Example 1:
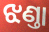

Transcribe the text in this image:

ଝଣ୍ତା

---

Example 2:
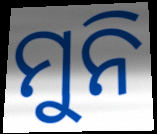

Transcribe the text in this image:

ମୁନି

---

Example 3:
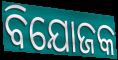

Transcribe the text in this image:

ବିଯୋଜକ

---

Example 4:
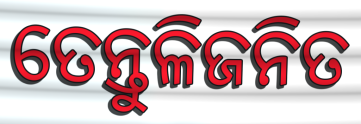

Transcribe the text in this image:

ତେନ୍ତୁଳିଜନିତ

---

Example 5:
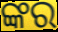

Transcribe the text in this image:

ଙ୍କର